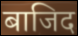
बाजिद